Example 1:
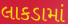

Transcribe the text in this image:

લાકડામાં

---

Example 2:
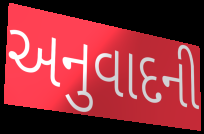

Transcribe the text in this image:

અનુવાદની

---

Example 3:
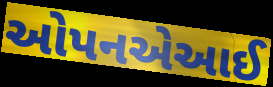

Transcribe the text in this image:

ઓપનએઆઈ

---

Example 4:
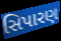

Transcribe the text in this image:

સિપારણ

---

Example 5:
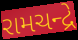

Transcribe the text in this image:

રામચન્દ્રે